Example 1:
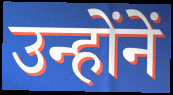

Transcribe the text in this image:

उन्होंनें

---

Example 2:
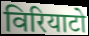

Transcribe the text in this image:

विरियाटो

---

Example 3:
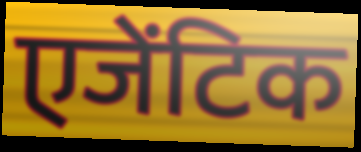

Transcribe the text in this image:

एजेंटिक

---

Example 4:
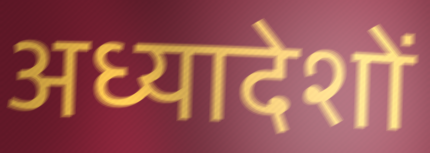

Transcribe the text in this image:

अध्यादेशों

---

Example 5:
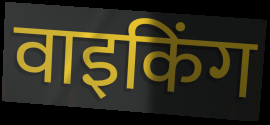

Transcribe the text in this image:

वाइकिंग